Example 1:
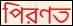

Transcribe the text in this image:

পিরণত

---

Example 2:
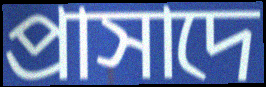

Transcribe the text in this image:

প্রাসাদে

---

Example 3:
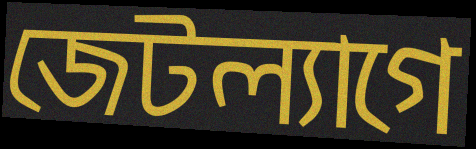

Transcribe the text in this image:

জেটল্যাগে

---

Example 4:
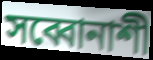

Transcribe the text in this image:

সব্বোনাশী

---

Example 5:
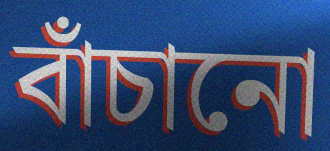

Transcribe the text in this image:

বাঁচানো